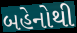
બહેનોથી